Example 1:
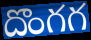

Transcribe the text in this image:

దొంగగ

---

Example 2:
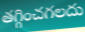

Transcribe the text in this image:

తగ్గించగలదు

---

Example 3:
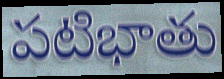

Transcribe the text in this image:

పటిభాతు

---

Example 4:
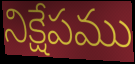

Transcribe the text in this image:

నిక్షేపము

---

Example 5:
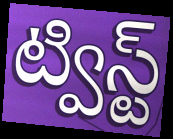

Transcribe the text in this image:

ట్విస్ట్